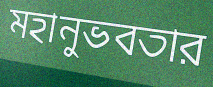
মহানুভবতার